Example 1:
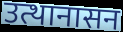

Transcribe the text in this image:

उत्थानासन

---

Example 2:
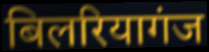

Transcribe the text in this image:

बिलरियागंज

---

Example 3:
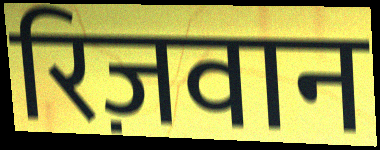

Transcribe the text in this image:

रिज़वान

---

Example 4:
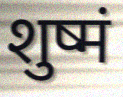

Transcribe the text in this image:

शुष्मं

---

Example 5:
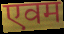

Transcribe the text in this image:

एवम